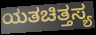
ಯತಚಿತ್ತಸ್ಯ